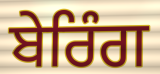
ਬੇਰਿੰਗ